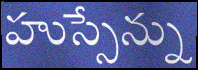
హుస్సేన్ను